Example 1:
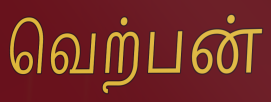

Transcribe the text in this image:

வெற்பன்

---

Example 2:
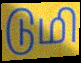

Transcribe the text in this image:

டுமி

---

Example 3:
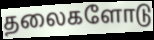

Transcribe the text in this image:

தலைகளோடு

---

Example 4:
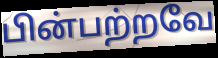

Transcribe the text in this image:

பின்பற்றவே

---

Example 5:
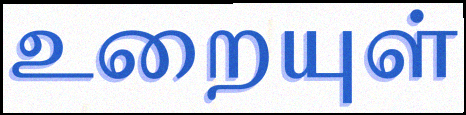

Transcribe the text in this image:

உறையுள்